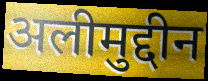
अलीमुद्दीन